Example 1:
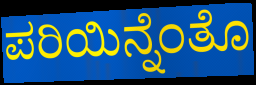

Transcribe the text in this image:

ಪರಿಯಿನ್ನೆಂತೊ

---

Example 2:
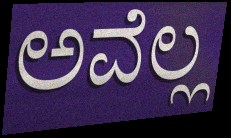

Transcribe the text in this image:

ಅವೆಲ್ಲ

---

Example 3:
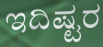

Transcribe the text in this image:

ಇದಿಷ್ಟರ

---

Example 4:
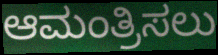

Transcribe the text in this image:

ಆಮಂತ್ರಿಸಲು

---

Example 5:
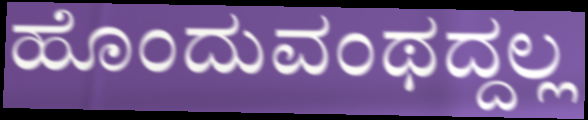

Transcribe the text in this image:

ಹೊಂದುವಂಥದ್ದಲ್ಲ